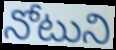
నోటుని